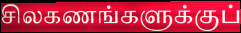
சிலகணங்களுக்குப்